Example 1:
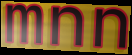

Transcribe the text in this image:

mnn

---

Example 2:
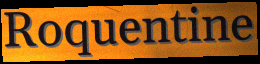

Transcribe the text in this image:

Roquentine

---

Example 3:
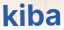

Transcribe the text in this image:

kiba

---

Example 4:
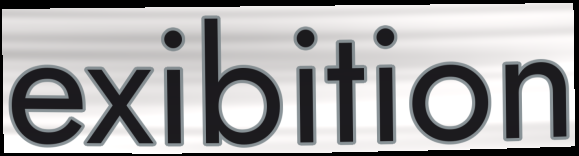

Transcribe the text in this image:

exibition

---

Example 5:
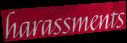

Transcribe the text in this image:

harassments